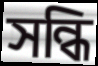
সন্ধি